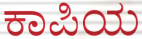
ಕಾಪಿಯ